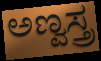
ಅಣ್ವಸ್ತ್ರ